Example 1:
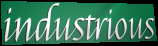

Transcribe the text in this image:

industrious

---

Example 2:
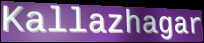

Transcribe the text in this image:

Kallazhagar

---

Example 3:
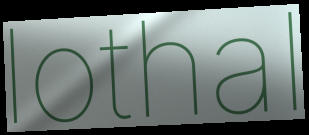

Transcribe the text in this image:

lothal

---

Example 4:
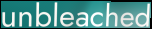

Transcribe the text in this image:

unbleached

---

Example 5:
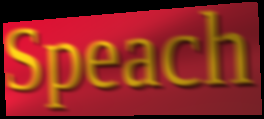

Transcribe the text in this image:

Speach